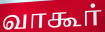
வாகூர்